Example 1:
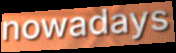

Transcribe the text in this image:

nowadays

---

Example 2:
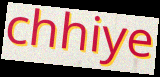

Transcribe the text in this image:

chhiye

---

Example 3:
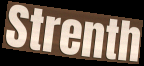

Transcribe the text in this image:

Strenth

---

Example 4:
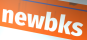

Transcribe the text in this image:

newbks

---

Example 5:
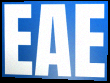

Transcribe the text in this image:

EAE